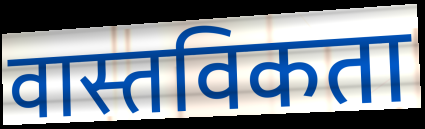
वास्तविकता